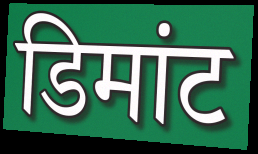
डिमांट